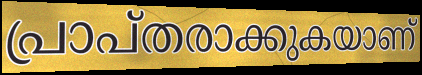
പ്രാപ്തരാക്കുകയാണ്